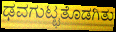
ಢವಗುಟ್ಟತೊಡಗಿತು